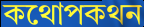
কথোপকথন